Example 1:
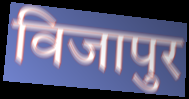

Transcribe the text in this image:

विजापुर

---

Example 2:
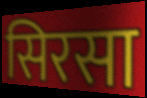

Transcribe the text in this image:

सिरसा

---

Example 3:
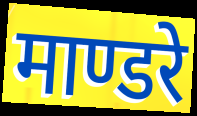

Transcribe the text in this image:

माण्डरे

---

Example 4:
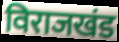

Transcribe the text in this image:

विराजखंड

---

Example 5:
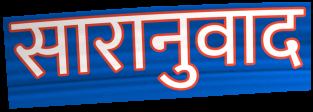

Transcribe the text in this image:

सारानुवाद